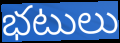
భటులు